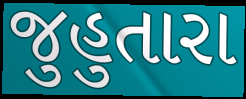
જુહુતારા